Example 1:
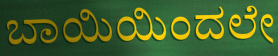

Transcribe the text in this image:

ಬಾಯಿಯಿಂದಲೇ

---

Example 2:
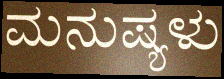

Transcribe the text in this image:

ಮನುಷ್ಯಳು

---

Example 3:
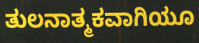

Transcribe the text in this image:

ತುಲನಾತ್ಮಕವಾಗಿಯೂ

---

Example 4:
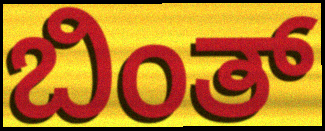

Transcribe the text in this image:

ಬಿಂತ್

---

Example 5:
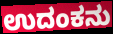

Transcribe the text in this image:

ಉದಂಕನು